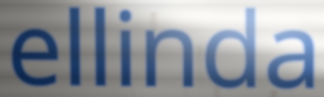
ellinda